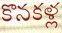
కొనకళ్ల